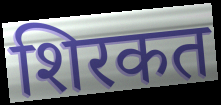
शिरकत